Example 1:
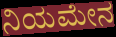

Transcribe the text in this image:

ನಿಯಮೇನ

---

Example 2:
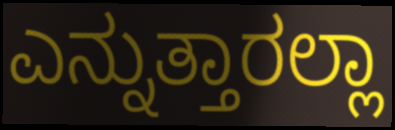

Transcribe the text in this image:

ಎನ್ನುತ್ತಾರಲ್ಲಾ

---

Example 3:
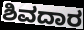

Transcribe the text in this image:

ಶಿವದಾರ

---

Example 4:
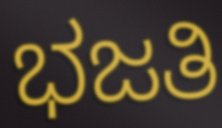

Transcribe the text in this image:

ಭಜತಿ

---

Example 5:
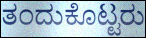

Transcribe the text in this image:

ತಂದುಕೊಟ್ಟರು